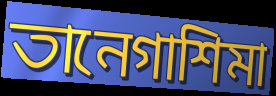
তানেগাশিমা